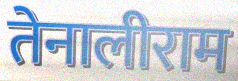
तेनालीराम